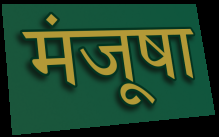
मंजूषा